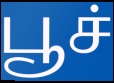
பூச்